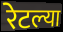
रेटल्या